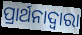
ପ୍ରାର୍ଥନାଦ୍ଵାରା